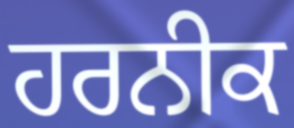
ਹਰਨੀਕ